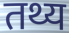
तथ्य